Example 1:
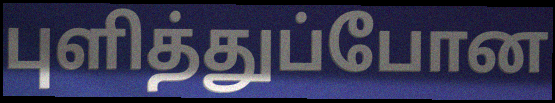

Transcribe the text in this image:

புளித்துப்போன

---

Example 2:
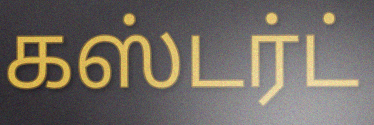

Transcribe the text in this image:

கஸ்டர்ட்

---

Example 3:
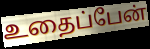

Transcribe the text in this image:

உதைப்பேன்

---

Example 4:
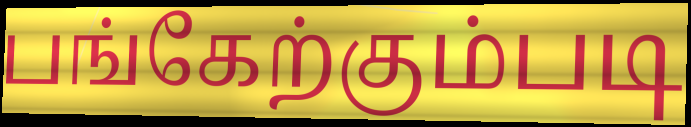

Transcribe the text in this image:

பங்கேற்கும்படி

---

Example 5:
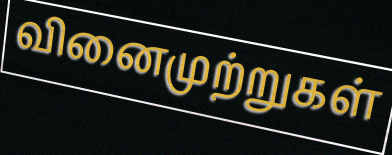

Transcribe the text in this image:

வினைமுற்றுகள்